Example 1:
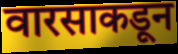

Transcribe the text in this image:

वारसाकडून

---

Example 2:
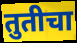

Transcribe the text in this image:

तुतीचा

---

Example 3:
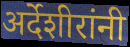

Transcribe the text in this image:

अर्देशीरांनी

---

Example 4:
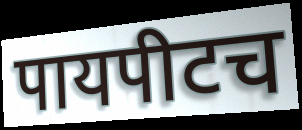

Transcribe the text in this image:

पायपीटच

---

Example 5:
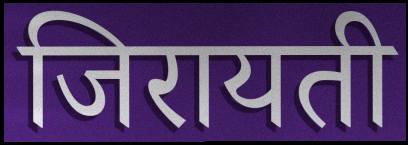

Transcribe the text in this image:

जिरायती